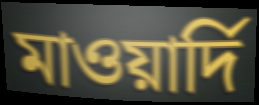
মাওয়ার্দি